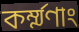
কর্ম্মণাং